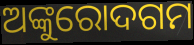
ଅଙ୍କୁରୋଦଗମ